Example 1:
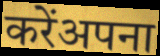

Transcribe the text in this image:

करेंअपना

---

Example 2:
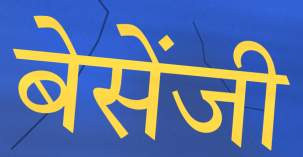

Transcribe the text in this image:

बेसेंजी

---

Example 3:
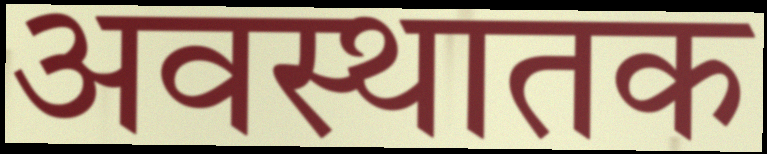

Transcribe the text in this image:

अवस्थातक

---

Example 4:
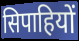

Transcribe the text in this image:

सिपाहियों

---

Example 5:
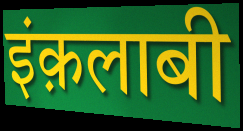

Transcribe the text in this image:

इंक़लाबी